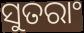
ସୁତରାଂ